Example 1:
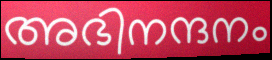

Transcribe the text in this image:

അഭിനന്ദനം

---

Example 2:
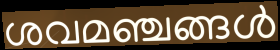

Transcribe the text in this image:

ശവമഞ്ചങ്ങൾ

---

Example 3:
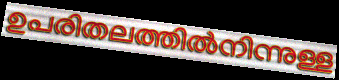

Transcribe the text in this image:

ഉപരിതലത്തിൽനിന്നുള്ള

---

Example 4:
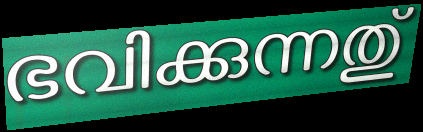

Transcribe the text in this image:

ഭവിക്കുന്നതു്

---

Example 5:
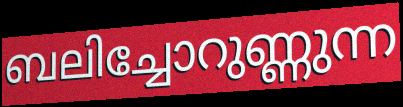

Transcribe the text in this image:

ബലിച്ചോറുണ്ണുന്ന